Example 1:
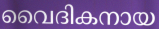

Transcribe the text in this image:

വൈദികനായ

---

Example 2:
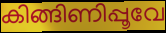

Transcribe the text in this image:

കിങ്ങിണിപ്പൂവേ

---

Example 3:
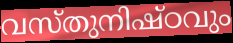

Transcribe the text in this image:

വസ്തുനിഷ്ഠവും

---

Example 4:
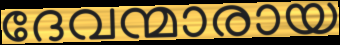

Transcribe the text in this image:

ദേവന്മാരായ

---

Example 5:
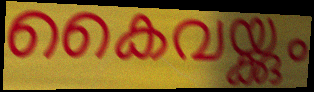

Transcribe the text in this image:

കൈവയ്ക്കും